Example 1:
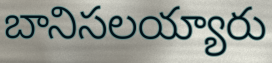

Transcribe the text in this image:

బానిసలయ్యారు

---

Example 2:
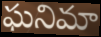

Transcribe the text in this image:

ఘనిమా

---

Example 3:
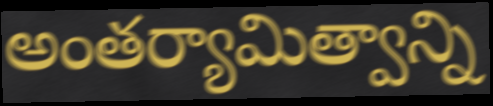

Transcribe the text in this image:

అంతర్యామిత్వాన్ని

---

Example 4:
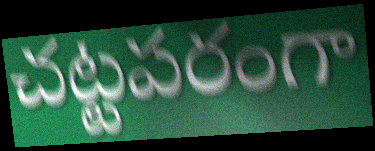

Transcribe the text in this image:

చట్టపరంగా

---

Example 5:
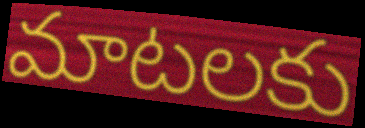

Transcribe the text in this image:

మాటలకు